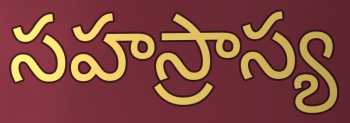
సహస్రాస్య